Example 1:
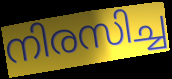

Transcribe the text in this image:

നിരസിച്ച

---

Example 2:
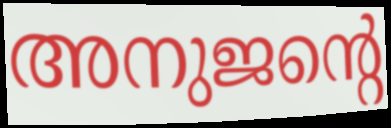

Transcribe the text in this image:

അനുജന്റെ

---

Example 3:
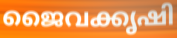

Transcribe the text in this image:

ജൈവക്കൃഷി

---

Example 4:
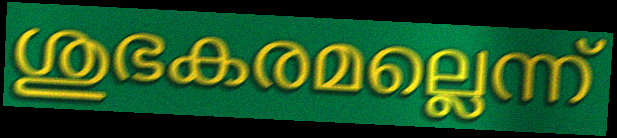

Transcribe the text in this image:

ശുഭകരമല്ലെന്ന്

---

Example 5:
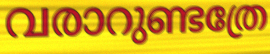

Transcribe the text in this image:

വരാറുണ്ടത്രേ